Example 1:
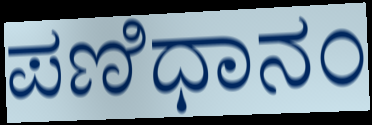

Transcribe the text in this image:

ಪಣಿಧಾನಂ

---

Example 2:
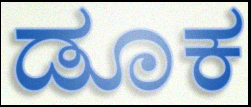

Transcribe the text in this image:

ಡೂಕ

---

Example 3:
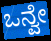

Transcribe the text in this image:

ಒನ್ವೇ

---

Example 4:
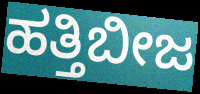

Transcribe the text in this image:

ಹತ್ತಿಬೀಜ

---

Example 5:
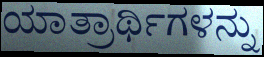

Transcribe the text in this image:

ಯಾತ್ರಾರ್ಥಿಗಳನ್ನು